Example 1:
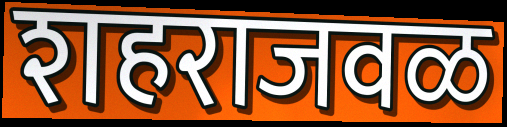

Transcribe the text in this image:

शहराजवळ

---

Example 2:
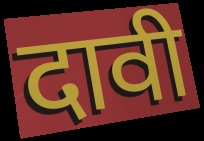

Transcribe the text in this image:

दावी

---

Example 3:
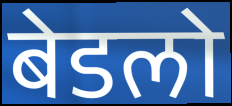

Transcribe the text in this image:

बेडलो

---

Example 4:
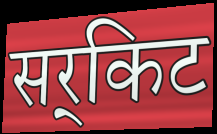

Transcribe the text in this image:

सर्किट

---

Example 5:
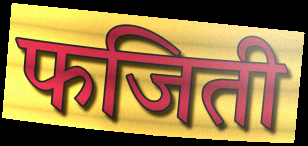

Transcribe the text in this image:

फजिती